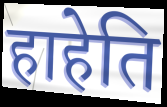
हाहेति